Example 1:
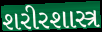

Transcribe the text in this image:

શરીરશાસ્ત્ર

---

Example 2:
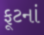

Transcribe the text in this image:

ફૂટનાં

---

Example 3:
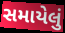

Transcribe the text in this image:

સમાયેલું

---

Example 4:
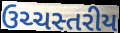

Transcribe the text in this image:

ઉચ્ચસ્તરીય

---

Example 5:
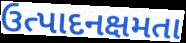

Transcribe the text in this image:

ઉત્પાદનક્ષમતા